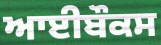
ਆਈਬੌਕਸ